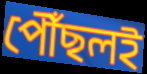
পৌঁছলই